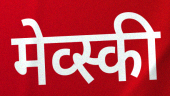
मेव्स्की